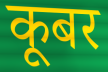
कूबर